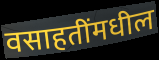
वसाहतींमधील